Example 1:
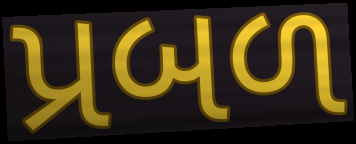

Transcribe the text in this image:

પ્રબળ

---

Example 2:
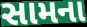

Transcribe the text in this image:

સામના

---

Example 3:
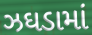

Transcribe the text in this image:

ઝઘડામાં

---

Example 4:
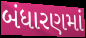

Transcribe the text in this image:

બંધારણમાં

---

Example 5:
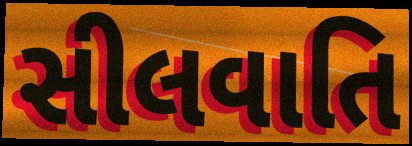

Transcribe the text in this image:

સીલવાતિ